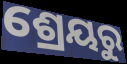
ଶ୍ରେୟରୁ